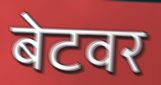
बेटवर